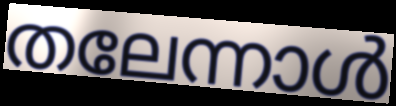
തലേന്നാൾ